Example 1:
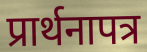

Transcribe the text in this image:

प्रार्थनापत्र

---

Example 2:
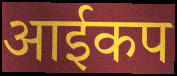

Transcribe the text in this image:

आईकप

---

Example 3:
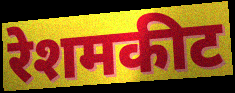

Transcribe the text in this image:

रेशमकीट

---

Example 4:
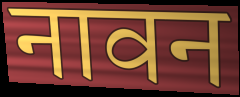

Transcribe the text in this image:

नावन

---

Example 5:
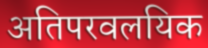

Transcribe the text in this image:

अतिपरवलयिक